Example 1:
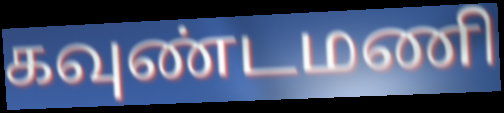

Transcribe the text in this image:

கவுண்டமணி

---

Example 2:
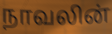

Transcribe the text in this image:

நாவலின்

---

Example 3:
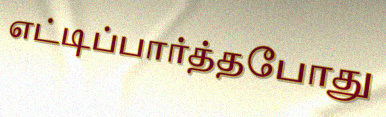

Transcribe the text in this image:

எட்டிப்பார்த்தபோது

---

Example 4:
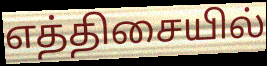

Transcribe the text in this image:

எத்திசையில்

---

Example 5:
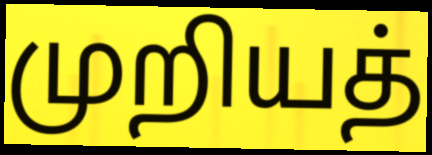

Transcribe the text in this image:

முறியத்